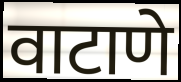
वाटाणे